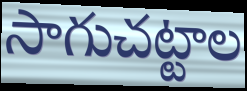
సాగుచట్టాల